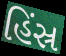
હિંસ્ર